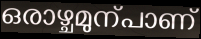
ഒരാഴ്ചമുന്പാണ്